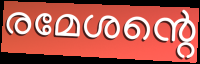
രമേശന്റെ